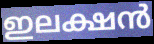
ഇലക്ഷൻ